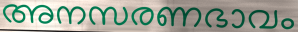
അനസരണഭാവം